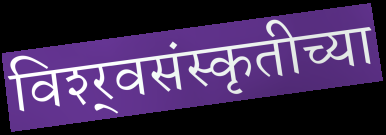
विश्र्वसंस्कृतीच्या